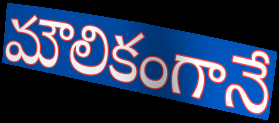
మౌలికంగానే